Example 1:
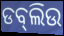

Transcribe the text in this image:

ଡବ୍‍ଲିଉ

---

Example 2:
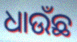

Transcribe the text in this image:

ଧାଉଁଛ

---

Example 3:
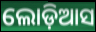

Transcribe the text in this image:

ଲୋଡ଼ିଆସ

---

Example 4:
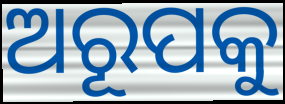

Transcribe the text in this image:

ଅରୂପକୁ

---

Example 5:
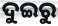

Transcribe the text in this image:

ଦୁଇରୁ